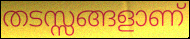
തടസ്സങ്ങളാണ്